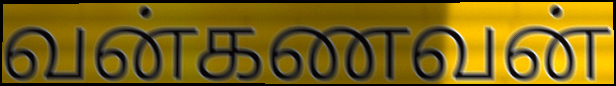
வன்கணவன்